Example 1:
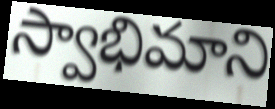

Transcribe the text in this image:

స్వాభిమాని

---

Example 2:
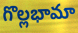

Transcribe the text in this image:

గొల్లభామా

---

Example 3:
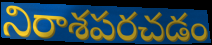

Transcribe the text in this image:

నిరాశపరచడం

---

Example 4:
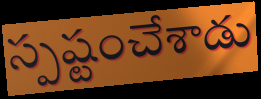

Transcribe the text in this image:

స్పష్టంచేశాడు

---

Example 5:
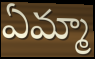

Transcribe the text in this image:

ఏమ్మా